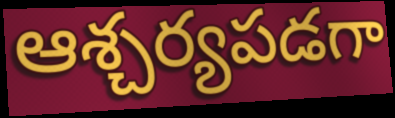
ఆశ్చర్యపడగా